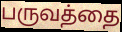
பருவத்தை